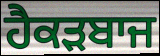
ਹੈਕੜਬਾਜ